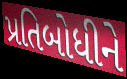
પ્રતિબોધીને